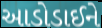
આડોડાઈને